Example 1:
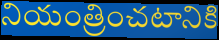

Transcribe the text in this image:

నియంత్రించటానికి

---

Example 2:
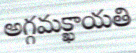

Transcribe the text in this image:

అగ్గమక్ఖాయతి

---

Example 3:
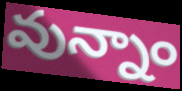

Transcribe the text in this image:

వున్నాం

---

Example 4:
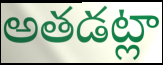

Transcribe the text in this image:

అతడట్లా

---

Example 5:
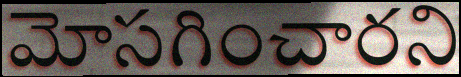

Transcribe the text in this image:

మోసగించారని